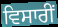
ਵਿਸਾਰੀਂ